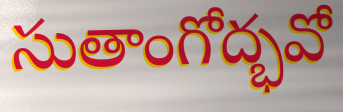
సుతాంగోద్భవో